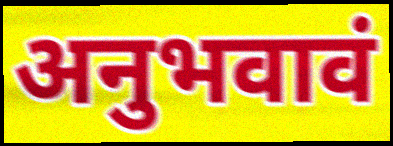
अनुभवावं